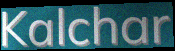
Kalchar